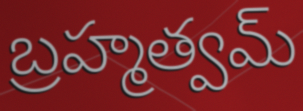
బ్రహ్మత్వమ్